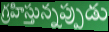
గ్రహిస్తున్నప్పుడు